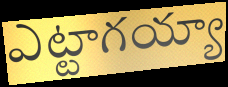
ఎట్టాగయ్యా